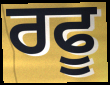
ਰਫੂ